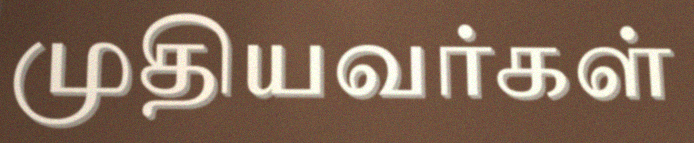
முதியவர்கள்